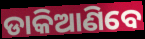
ଡାକିଆଣିବେ